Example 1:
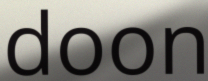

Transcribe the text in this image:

doon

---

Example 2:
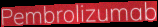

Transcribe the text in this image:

Pembrolizumab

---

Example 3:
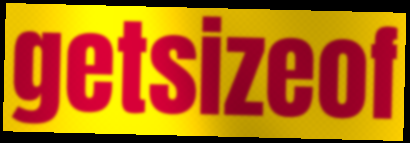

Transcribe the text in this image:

getsizeof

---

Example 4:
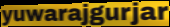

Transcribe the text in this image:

yuwarajgurjar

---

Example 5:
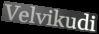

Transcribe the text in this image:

Velvikudi